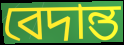
বেদান্ত